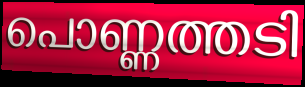
പൊണ്ണത്തടി